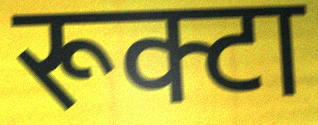
रूक्टा